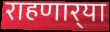
राहणार्‍या